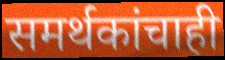
समर्थकांचाही